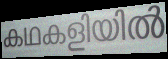
കഥകളിയിൽ